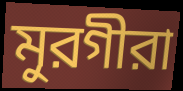
মুরগীরা